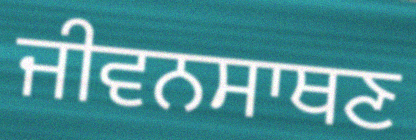
ਜੀਵਨਸਾਥਣ